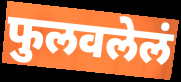
फुलवलेलं